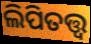
ଲିପିତତ୍ତ୍ୱ